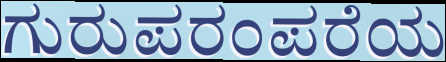
ಗುರುಪರಂಪರೆಯ